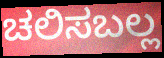
ಚಲಿಸಬಲ್ಲ